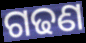
ଗଢଣ